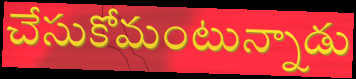
చేసుకోమంటున్నాడు